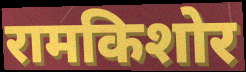
रामकिशोर